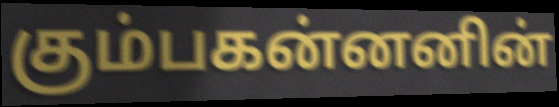
கும்பகன்னனின்